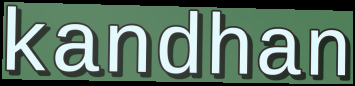
kandhan